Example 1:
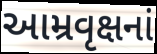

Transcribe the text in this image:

આમ્રવૃક્ષનાં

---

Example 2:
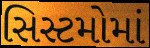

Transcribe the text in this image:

સિસ્ટમોમાં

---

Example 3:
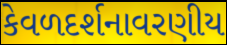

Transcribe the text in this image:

કેવળદર્શનાવરણીય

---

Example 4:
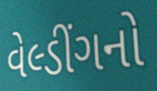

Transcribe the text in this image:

વેલ્ડીંગનો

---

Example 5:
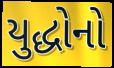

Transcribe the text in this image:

યુદ્ધોનો